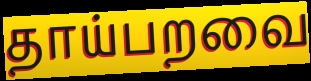
தாய்பறவை